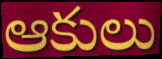
ఆకులు